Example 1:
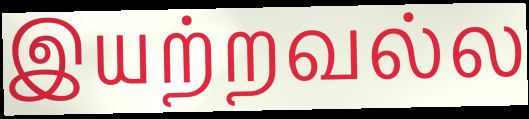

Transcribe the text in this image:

இயற்றவல்ல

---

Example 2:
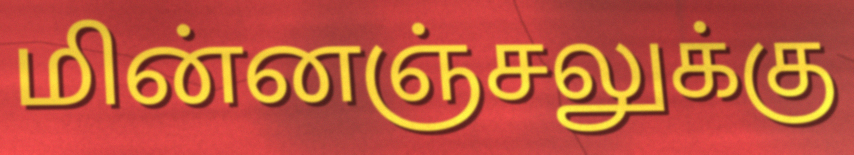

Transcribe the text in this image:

மின்னஞ்சலுக்கு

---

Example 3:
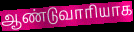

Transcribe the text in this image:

ஆண்டுவாரியாக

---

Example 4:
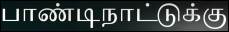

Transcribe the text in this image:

பாண்டிநாட்டுக்கு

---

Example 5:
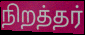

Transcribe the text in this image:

நிறத்தர்